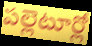
పల్లెటూర్లో